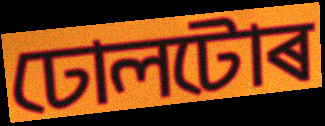
ঢোলটোৰ